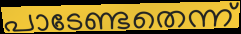
പാടേണ്ടതെന്ന്